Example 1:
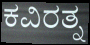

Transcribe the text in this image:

ಕವಿರತ್ನ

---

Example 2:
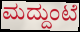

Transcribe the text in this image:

ಮದ್ದುಂಟೆ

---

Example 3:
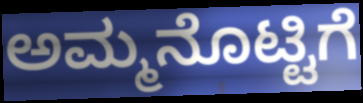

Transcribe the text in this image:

ಅಮ್ಮನೊಟ್ಟಿಗೆ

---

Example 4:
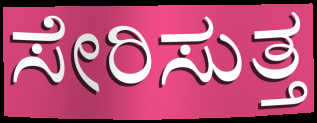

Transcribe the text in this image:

ಸೇರಿಸುತ್ತ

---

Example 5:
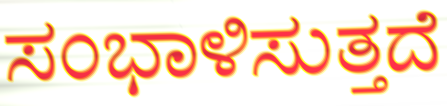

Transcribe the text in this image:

ಸಂಭಾಳಿಸುತ್ತದೆ